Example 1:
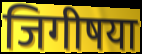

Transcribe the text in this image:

जिगीषया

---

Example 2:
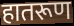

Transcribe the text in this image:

हातरूण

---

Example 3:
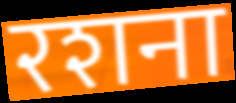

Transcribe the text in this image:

रशना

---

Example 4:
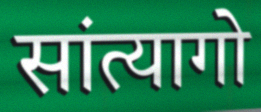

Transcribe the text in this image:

सांत्यागो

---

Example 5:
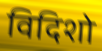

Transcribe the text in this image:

विदिशो